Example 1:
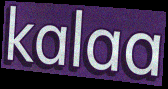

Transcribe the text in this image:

kalaa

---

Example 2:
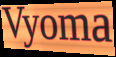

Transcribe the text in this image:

Vyoma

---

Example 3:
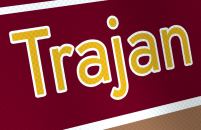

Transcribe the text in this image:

Trajan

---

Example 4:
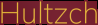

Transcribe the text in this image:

Hultzch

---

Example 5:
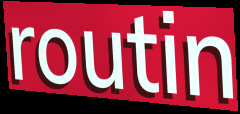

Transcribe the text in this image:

routin